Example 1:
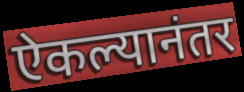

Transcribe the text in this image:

ऐकल्यानंतर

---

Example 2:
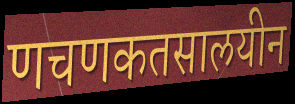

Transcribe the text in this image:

णचणकतसालयीन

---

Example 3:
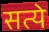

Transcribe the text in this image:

सत्ये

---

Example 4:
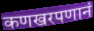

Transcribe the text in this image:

कणखरपणानं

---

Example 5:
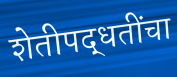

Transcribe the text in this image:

शेतीपद्धतींचा